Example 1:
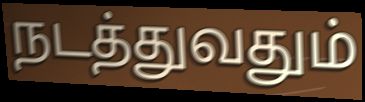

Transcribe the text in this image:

நடத்துவதும்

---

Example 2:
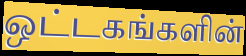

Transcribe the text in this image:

ஒட்டகங்களின்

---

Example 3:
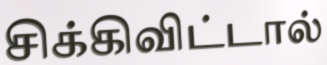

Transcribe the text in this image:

சிக்கிவிட்டால்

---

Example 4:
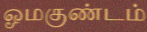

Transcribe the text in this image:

ஓமகுண்டம்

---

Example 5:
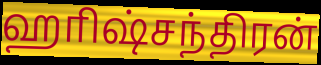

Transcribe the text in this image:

ஹரிஷ்சந்திரன்